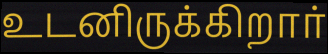
உடனிருக்கிறார்